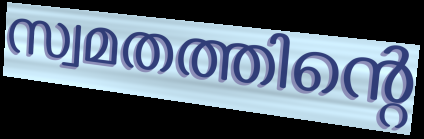
സ്വമതത്തിന്റെ